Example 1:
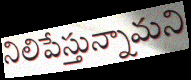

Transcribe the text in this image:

నిలిపేస్తున్నామని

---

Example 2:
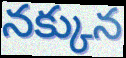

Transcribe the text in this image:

నక్కున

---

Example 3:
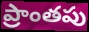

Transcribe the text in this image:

ప్రాంతపు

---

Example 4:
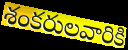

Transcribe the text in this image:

శంకరులవారికి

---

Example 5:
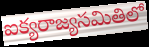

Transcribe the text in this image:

ఐక్యరాజ్యసమితిలో